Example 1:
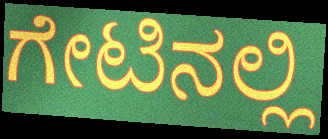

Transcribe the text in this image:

ಗೇಟಿನಲ್ಲಿ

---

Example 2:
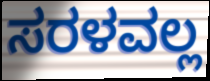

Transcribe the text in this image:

ಸರಳವಲ್ಲ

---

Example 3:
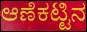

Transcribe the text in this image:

ಆಣೆಕಟ್ಟಿನ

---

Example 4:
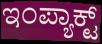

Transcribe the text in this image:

ಇಂಪ್ಯಾಕ್ಟ್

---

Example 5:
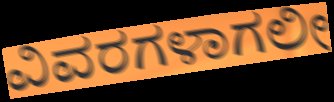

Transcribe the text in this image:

ವಿವರಗಳಾಗಲೀ